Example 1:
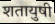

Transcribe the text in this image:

शतायुषी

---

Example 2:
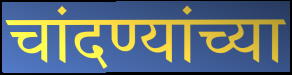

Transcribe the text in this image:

चांदण्यांच्या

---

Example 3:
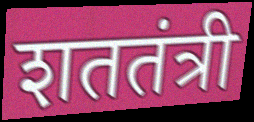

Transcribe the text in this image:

शततंत्री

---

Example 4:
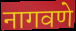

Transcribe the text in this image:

नागवणे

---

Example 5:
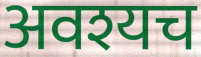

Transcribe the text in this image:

अवश्यच